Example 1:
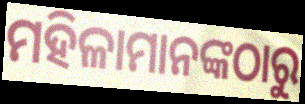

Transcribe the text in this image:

ମହିଳାମାନଙ୍କଠାରୁ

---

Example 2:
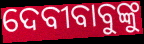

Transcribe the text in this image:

ଦେବୀବାବୁଙ୍କୁ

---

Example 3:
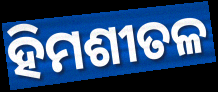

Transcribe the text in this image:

ହିମଶୀତଳ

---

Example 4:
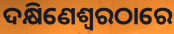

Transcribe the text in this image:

ଦକ୍ଷିଣେଶ୍ୱରଠାରେ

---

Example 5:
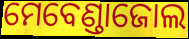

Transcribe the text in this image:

ମେବେଣ୍ଡାଜୋଲ